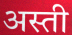
अस्ती